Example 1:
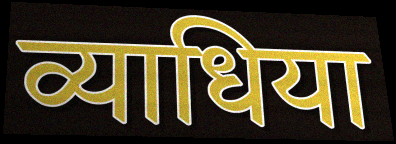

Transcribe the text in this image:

व्याधिया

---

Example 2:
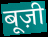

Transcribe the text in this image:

बूज़ी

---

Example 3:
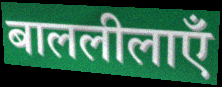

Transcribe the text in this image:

बाललीलाएँ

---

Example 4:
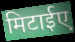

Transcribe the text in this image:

मिटाईए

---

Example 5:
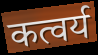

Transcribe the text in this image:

कत्वर्य